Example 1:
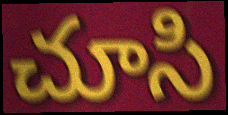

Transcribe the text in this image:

చూసి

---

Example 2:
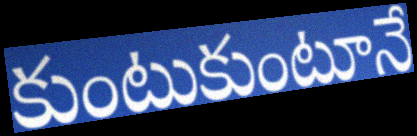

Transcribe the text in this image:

కుంటుకుంటూనే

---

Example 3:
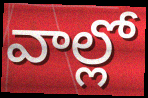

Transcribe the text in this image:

వాల్లో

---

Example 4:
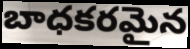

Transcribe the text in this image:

బాధకరమైన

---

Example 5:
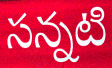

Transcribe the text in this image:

సన్నటి